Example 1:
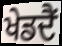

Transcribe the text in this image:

ਖੇਡਦੈਂ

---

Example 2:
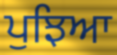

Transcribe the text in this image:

ਪੁਝਿਆ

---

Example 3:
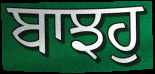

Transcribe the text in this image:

ਬਾਝਹੁ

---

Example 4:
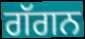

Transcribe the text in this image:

ਗੱਗਨ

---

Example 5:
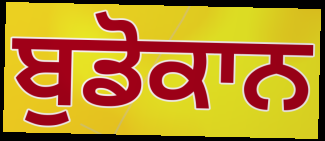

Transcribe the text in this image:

ਬੁਡੋਕਾਨ